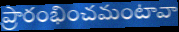
ప్రారంభించమంటావా